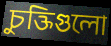
চুক্তিগুলো